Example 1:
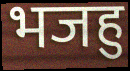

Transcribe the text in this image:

भजहु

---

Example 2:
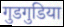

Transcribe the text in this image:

गुडगुडिया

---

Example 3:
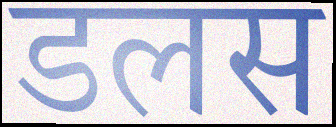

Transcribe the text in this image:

डलस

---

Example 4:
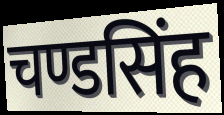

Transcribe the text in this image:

चण्डसिंह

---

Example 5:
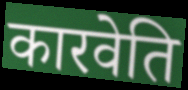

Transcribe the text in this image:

कारवेति